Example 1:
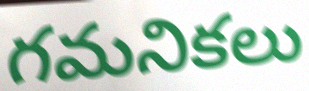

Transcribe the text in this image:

గమనికలు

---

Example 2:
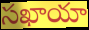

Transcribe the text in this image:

సఖాయా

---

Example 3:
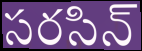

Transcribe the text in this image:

సరసిన్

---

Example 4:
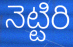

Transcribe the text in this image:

నెట్టిరి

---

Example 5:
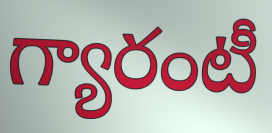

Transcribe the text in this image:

గ్యారంటీ